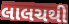
લાલચથી